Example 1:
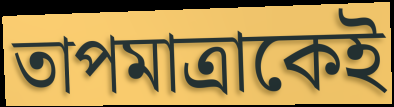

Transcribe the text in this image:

তাপমাত্রাকেই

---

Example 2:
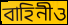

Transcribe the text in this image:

বাহিনীও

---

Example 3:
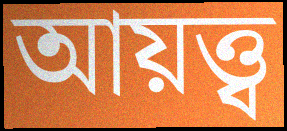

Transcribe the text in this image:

আয়ত্ত্ব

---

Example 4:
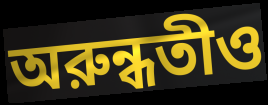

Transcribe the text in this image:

অরুন্ধতীও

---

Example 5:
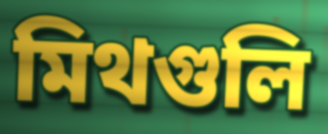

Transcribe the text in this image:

মিথগুলি